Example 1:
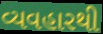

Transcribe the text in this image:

વ્યવહારથી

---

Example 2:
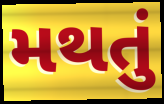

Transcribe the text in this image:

મથતું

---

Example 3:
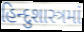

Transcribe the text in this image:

હિન્દુશાસ્ત્રમાં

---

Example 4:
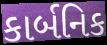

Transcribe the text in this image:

કાર્બનિક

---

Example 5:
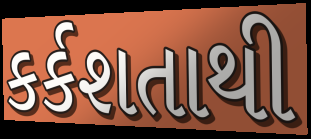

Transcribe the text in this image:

કર્કશતાથી